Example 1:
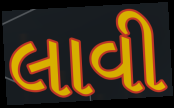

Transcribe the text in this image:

લાવી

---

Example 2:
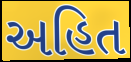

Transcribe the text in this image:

અહિત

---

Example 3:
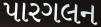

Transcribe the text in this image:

પારગલન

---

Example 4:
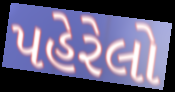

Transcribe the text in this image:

પહેરેલો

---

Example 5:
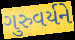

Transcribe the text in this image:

ગુરુવર્યને